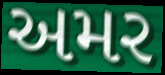
અમર